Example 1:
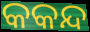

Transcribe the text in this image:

କକନ୍ଦ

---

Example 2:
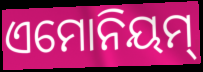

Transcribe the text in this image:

ଏମୋନିୟମ୍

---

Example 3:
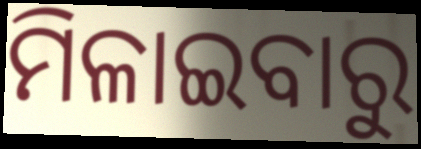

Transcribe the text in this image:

ମିଳାଇବାରୁ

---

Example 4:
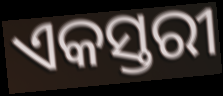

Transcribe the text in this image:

ଏକସ୍ତରୀ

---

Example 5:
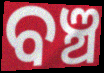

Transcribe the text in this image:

ବଞ୍ଚ